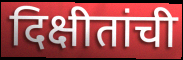
दिक्षीतांची